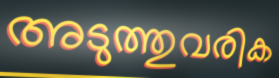
അടുത്തുവരിക